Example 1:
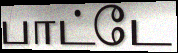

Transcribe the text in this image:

பாட்டே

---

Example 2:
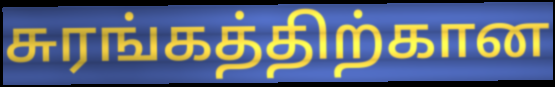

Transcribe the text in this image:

சுரங்கத்திற்கான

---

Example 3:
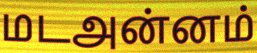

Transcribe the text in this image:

மடஅன்னம்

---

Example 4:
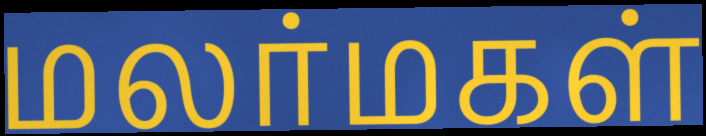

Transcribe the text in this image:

மலர்மகள்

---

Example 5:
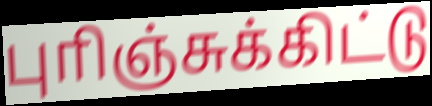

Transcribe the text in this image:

புரிஞ்சுக்கிட்டு